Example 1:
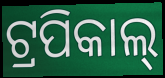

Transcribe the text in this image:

ଟ୍ରପିକାଲ୍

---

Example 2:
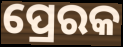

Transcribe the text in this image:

ପ୍ରେରକ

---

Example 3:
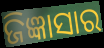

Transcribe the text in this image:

ଜିଜ୍ଞାସାର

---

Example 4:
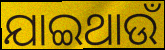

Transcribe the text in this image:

ଯାଇଥାଉଁ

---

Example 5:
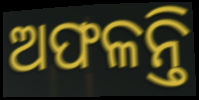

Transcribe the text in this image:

ଅଫଳନ୍ତି